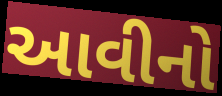
આવીનો